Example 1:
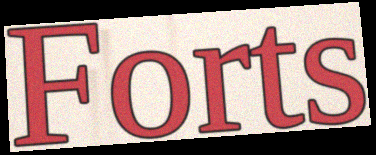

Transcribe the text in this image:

Forts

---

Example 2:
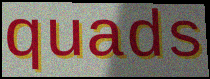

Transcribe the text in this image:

quads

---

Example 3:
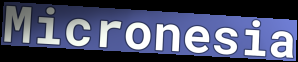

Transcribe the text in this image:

Micronesia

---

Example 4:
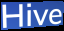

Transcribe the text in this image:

Hive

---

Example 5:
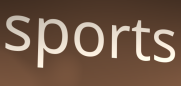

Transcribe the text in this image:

sports